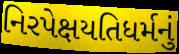
નિરપેક્ષયતિધર્મનું